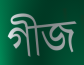
গীজ